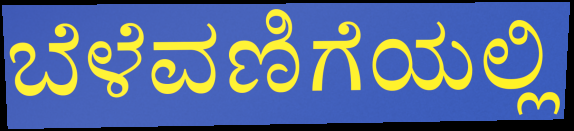
ಬೆಳೆವಣಿಗೆಯಲ್ಲಿ